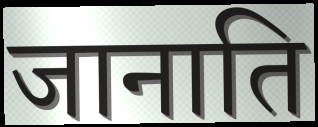
जानाति